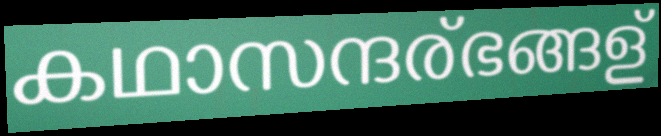
കഥാസന്ദര്ഭങ്ങള്